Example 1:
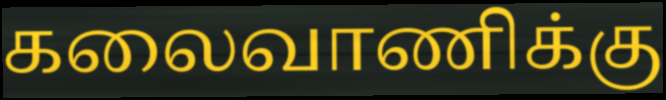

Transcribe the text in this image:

கலைவாணிக்கு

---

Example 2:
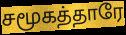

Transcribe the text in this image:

சமூகத்தாரே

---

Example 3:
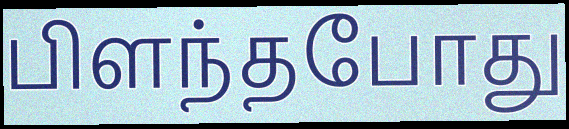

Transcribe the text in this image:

பிளந்தபோது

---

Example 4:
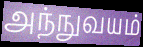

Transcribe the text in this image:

அந்நுவயம்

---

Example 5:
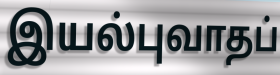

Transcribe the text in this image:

இயல்புவாதப்